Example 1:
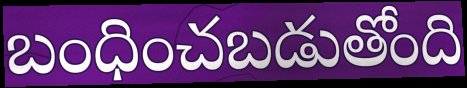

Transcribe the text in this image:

బంధించబడుతోంది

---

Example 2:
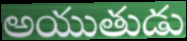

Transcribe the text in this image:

అయుతుడు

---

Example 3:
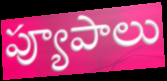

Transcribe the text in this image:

ప్యూపాలు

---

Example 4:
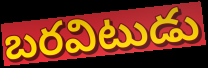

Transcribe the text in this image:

బరవిటుడు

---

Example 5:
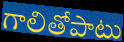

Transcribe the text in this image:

గాలితోపాటు